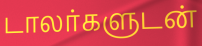
டாலர்களுடன்